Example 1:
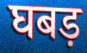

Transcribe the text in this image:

घबड़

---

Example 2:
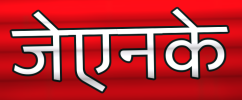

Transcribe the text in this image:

जेएनके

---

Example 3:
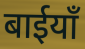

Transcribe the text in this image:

बाईयाँ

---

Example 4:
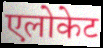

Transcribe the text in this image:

एलोकेट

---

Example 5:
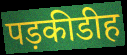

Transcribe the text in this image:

पड़कीडीह